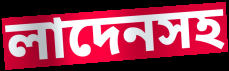
লাদেনসহ